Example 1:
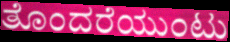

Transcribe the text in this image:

ತೊಂದರೆಯುಂಟು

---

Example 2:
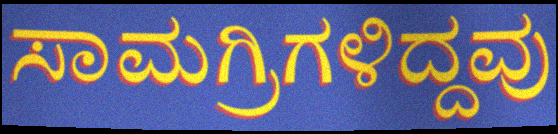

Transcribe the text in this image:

ಸಾಮಗ್ರಿಗಳಿದ್ದವು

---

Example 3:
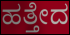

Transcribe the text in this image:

ಹತ್ತೇದ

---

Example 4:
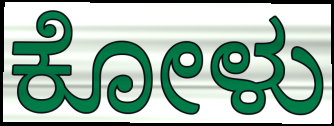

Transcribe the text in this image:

ಕೋಳು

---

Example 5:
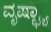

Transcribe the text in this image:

ವೃಷ್ಟ್ಯಾ